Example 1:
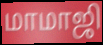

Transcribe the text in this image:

மாமாஜி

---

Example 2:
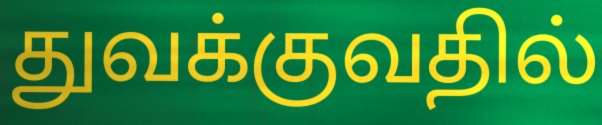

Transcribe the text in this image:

துவக்குவதில்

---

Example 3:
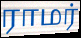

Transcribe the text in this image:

ராமர்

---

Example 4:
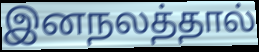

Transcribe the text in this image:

இனநலத்தால்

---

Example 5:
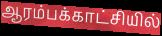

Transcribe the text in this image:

ஆரம்பக்காட்சியில்